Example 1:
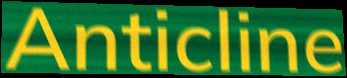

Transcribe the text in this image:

Anticline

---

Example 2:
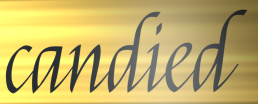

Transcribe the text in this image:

candied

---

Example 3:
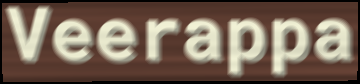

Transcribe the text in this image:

Veerappa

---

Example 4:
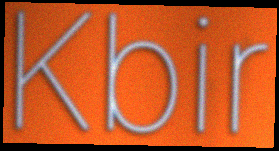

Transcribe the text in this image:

Kbir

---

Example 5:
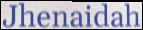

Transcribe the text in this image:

Jhenaidah